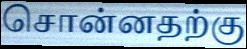
சொன்னதற்கு